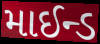
માઈન્ડ